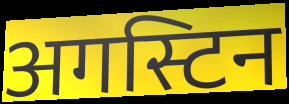
अगस्टिन